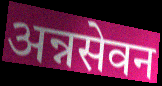
अन्नसेवन